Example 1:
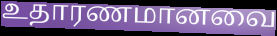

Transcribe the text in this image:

உதாரணமானவை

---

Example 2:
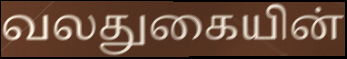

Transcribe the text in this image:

வலதுகையின்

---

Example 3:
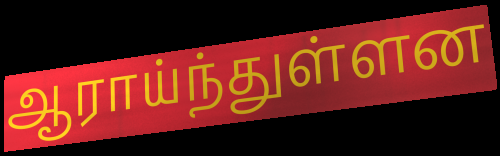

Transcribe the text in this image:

ஆராய்ந்துள்ளன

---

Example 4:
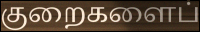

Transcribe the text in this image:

குறைகளைப்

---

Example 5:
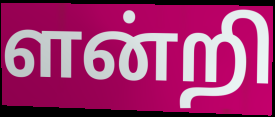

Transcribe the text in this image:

ளன்றி